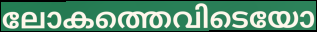
ലോകത്തെവിടെയോ